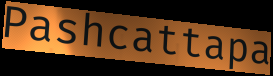
Pashcattapa